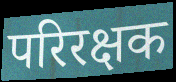
परिरक्षक